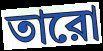
তারো